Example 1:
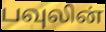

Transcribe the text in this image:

பவுலின்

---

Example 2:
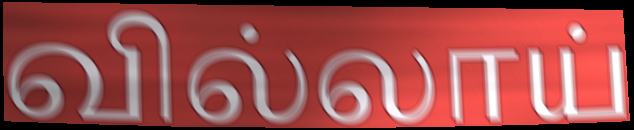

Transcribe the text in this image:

வில்லாய்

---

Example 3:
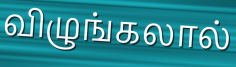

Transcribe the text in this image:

விழுங்கலால்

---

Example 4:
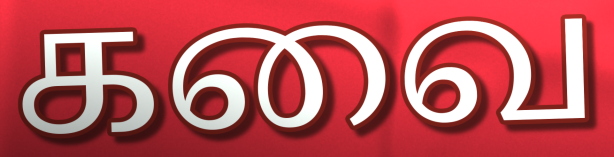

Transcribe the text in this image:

கவை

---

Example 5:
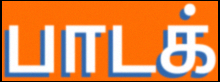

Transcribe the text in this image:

பாடக்